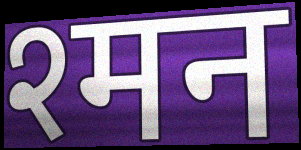
श्मन